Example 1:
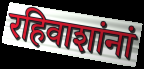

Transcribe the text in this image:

रहिवाशांनां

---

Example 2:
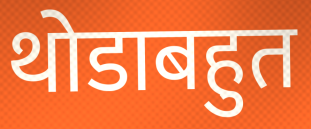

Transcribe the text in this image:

थोडाबहुत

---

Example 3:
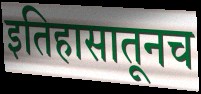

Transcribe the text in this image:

इतिहासातूनच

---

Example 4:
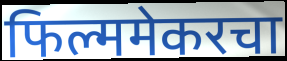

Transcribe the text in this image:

फिल्ममेकरचा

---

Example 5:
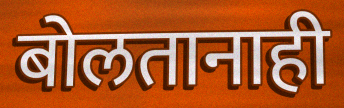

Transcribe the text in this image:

बोलतानाही